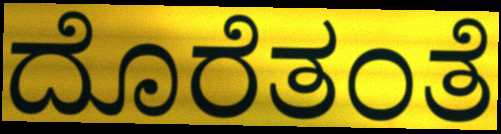
ದೊರೆತಂತೆ